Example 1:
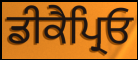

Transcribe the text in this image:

ਡੀਕੈਪ੍ਰਿਓ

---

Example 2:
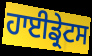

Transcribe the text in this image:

ਹਾਈਡ੍ਰੇਟਸ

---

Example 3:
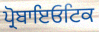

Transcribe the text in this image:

ਪ੍ਰੋਬਾਇਓਟਿਕ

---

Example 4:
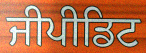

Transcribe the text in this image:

ਜੀਪੀਡਿਟ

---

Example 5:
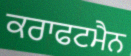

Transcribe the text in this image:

ਕਰਾਫਟਮੈਨ